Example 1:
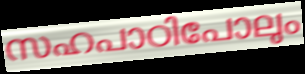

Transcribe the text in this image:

സഹപാഠിപോലും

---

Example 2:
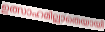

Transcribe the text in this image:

ഉത്സാഹമില്ലാതെയായി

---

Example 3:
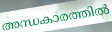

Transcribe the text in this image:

അന്ധകാരത്തിൽ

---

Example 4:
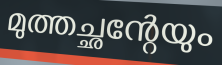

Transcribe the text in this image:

മുത്തച്ഛന്റേയും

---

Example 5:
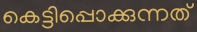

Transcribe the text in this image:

കെട്ടിപ്പൊക്കുന്നത്